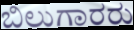
ಬಿಲುಗಾರರು